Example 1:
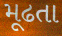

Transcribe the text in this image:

મૂઢતા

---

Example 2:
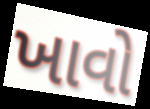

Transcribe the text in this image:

ખાવો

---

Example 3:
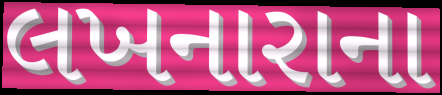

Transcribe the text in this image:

લખનારાના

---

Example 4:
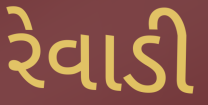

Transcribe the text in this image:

રેવાડી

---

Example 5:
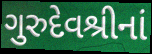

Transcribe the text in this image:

ગુરુદેવશ્રીનાં